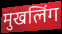
मुखलिंग